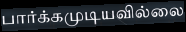
பார்க்கமுடியவில்லை